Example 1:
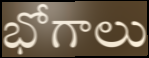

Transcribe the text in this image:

భోగాలు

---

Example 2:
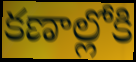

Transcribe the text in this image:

కణాల్లోకి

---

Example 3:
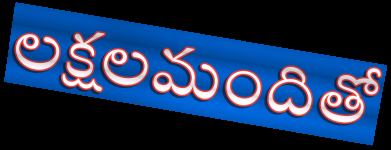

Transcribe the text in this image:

లక్షలమందితో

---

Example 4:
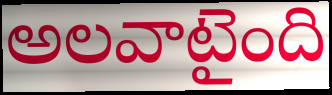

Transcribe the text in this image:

అలవాటైంది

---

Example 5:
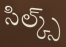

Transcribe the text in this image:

సిల్క్స్